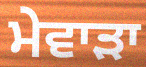
ਮੇਵਾੜਾ